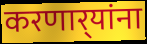
करणार्‍यांना